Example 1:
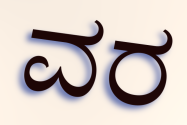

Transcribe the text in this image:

ವರ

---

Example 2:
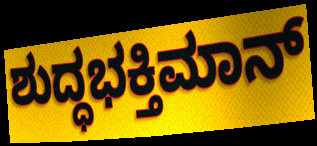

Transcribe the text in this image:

ಶುದ್ಧಭಕ್ತಿಮಾನ್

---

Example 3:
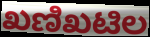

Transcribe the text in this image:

ಖಣಿಖಟಿಲ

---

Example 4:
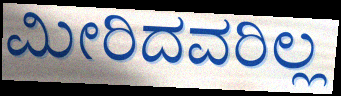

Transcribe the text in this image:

ಮೀರಿದವರಿಲ್ಲ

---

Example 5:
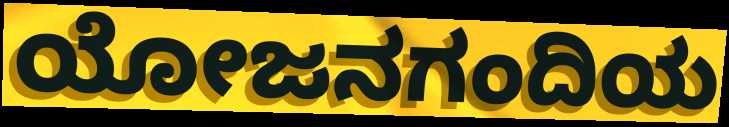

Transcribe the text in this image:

ಯೋಜನಗಂದಿಯ